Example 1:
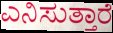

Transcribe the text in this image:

ಎನಿಸುತ್ತಾರೆ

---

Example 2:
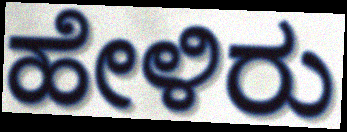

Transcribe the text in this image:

ಹೇಳಿರು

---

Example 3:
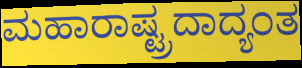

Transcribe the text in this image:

ಮಹಾರಾಷ್ಟ್ರದಾದ್ಯಂತ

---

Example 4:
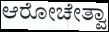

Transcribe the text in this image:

ಆರೋಚೇತ್ವಾ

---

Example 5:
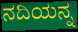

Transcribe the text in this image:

ನದಿಯನ್ನ